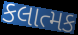
કલાત્મક